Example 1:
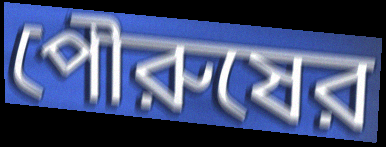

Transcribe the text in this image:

পৌরুষের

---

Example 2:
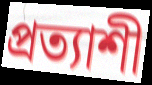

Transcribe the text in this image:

প্রত্যাশী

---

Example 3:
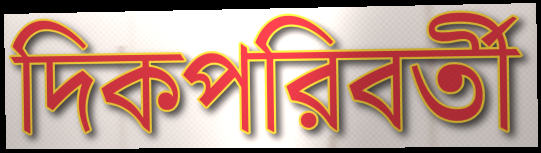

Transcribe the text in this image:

দিকপরিবর্তী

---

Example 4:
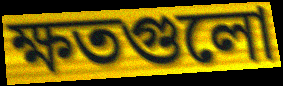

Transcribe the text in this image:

ক্ষতগুলো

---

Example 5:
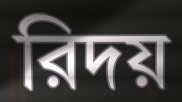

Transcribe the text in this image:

রিদয়